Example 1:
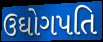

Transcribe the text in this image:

ઉઘોગપતિ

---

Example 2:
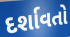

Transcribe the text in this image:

દર્શાવતો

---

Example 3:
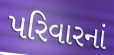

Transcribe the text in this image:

પરિવારનાં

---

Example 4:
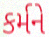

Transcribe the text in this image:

કર્મને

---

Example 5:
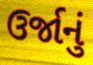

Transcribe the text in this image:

ઉર્જાનું